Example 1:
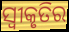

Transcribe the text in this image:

ସ୍ୱୀକୃତିର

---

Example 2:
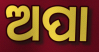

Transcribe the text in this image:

ଅପା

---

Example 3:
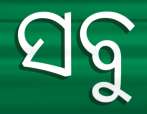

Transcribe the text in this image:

ସବୁ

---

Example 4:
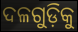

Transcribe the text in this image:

ଦଳଗୁଡ଼ିକୁ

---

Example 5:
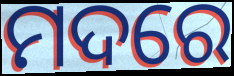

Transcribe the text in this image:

ମଦରେ